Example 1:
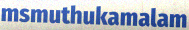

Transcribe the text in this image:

msmuthukamalam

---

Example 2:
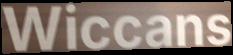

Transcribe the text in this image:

Wiccans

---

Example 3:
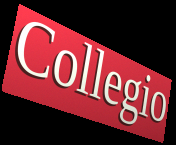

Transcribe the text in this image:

Collegio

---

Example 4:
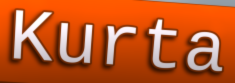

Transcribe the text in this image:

Kurta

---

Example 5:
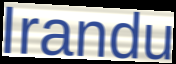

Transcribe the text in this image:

Irandu